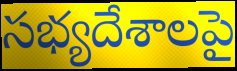
సభ్యదేశాలపై